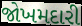
જોખમદારી